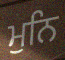
ਮੁਨਿ